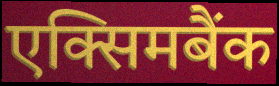
एक्सिमबैंक